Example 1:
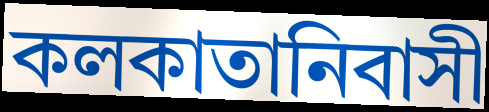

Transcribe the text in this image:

কলকাতানিবাসী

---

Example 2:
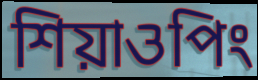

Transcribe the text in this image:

শিয়াওপিং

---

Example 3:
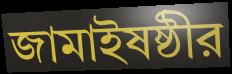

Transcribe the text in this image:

জামাইষষ্ঠীর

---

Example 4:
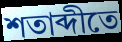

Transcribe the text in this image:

শতাব্দীতে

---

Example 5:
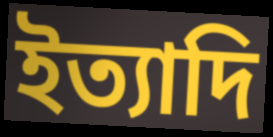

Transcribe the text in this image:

ইত্যাদি